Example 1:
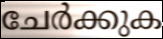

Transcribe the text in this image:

ചേർക്കുക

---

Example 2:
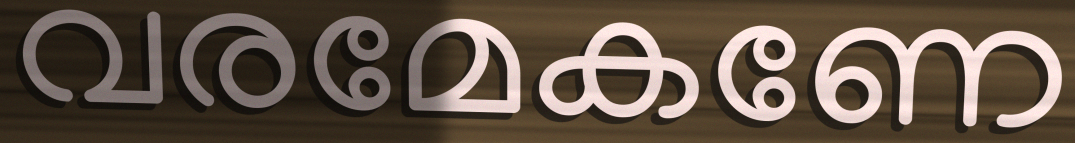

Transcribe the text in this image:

വരമേകണേ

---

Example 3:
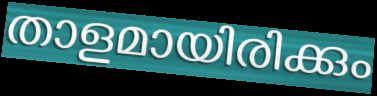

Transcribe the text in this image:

താളമായിരിക്കും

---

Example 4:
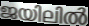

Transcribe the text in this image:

ജയിലിൽ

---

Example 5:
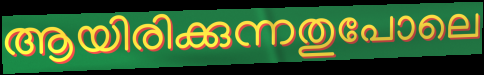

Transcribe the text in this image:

ആയിരിക്കുന്നതുപോലെ